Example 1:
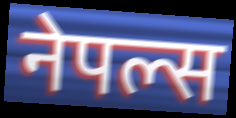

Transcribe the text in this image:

नेपल्स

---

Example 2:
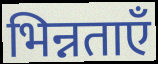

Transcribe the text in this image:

भिन्नताएँ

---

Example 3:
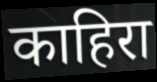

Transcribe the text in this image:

काहिरा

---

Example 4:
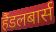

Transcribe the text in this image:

हैंडलबार्स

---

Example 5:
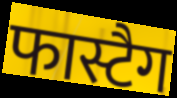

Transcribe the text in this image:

फास्टैग